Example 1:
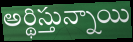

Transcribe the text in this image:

అర్థిస్తున్నాయి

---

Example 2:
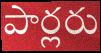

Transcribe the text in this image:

పార్లరు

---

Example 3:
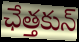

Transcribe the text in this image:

ఛేత్తకున్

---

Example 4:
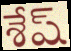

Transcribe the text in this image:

శేష్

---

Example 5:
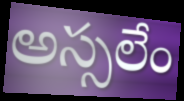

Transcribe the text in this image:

అస్సలేం